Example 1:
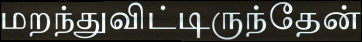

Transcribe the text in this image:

மறந்துவிட்டிருந்தேன்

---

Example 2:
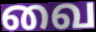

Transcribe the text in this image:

வை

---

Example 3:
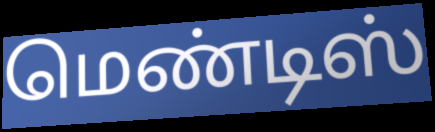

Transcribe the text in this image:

மெண்டிஸ்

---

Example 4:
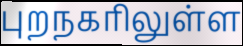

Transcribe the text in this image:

புறநகரிலுள்ள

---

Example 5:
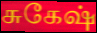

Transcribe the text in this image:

சுகேஷ்